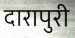
दारापुरी